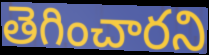
తెగించారని